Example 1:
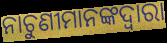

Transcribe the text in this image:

ନାଚୁଣୀମାନଙ୍କଦ୍ୱାରା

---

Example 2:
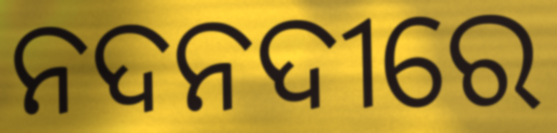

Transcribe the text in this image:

ନଦନଦୀରେ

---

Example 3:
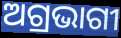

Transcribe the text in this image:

ଅଗ୍ରଭାଗୀ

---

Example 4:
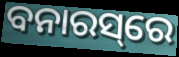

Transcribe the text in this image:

ବନାରସ୍‌ରେ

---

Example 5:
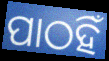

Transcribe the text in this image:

ପାଠହିଁ